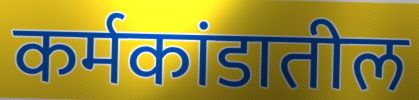
कर्मकांडातील